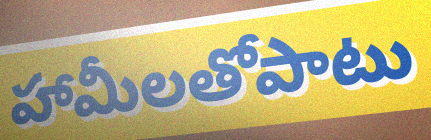
హామీలతోపాటు